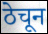
ठेचून